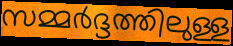
സമ്മർദ്ദത്തിലുള്ള